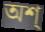
অশ্